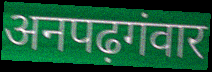
अनपढ़गंवार